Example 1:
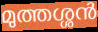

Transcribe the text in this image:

മുത്തശ്ശൻ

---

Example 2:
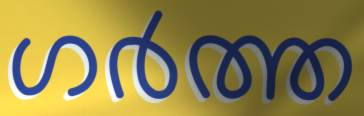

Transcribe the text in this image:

ഗർത്ത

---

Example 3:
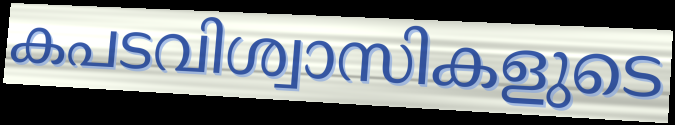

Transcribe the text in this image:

കപടവിശ്വാസികളുടെ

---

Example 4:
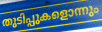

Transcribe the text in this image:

തുടിപ്പുകളൊന്നും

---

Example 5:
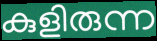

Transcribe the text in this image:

കുളിരുന്ന